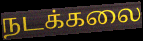
நடக்கலை